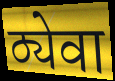
ठ्येवा